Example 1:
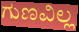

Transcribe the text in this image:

ಗುಣವಿಲ್ಲ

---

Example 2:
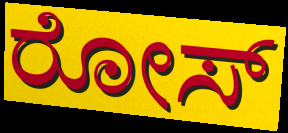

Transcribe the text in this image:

ರೋಸ್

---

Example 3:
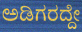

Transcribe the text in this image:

ಅಡಿಗರದ್ದೇ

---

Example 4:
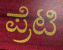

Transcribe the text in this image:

ಪ್ರೆಟಿ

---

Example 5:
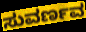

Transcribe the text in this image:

ಸುವರ್ಣವ